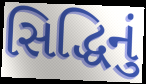
સિદ્ધિનું